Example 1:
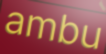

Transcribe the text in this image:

ambu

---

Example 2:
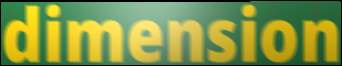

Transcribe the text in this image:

dimension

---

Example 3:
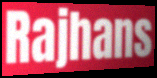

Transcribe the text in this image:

Rajhans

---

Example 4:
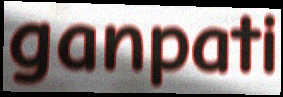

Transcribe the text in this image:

ganpati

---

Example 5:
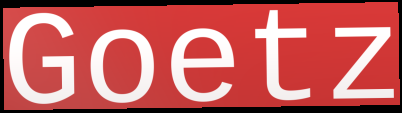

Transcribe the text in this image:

Goetz